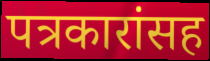
पत्रकारांसह